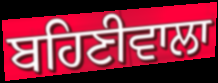
ਬਹਿਣੀਵਾਲਾ